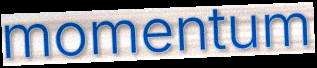
momentum